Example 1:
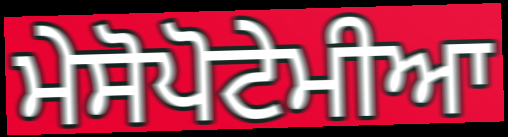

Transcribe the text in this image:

ਮੇਸੋਪੋਟੇਮੀਆ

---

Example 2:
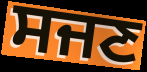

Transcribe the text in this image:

ਸਜਣ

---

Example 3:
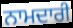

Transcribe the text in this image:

ਨਾਮਦਾਰੀ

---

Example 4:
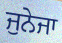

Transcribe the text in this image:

ਜੁਨੇਜਾ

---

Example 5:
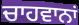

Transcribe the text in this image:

ਚਾਹਵਾਨਾਂ